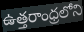
ఉత్తరాంధ్రలోని